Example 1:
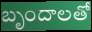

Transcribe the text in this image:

బృందాలతో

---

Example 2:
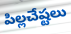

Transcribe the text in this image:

పిల్లచేష్టలు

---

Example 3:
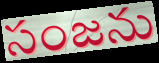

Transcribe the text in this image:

సంజను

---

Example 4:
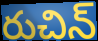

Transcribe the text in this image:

రుచిన్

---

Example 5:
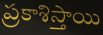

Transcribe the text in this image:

ప్రకాశిస్తాయి